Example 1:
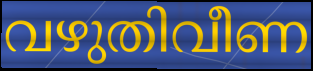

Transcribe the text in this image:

വഴുതിവീണ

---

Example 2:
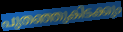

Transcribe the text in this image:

പുതഞ്ഞുകിടക്കും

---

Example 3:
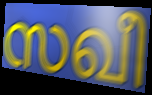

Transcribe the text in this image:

സഖീ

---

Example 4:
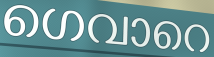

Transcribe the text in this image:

ഗെവാറെ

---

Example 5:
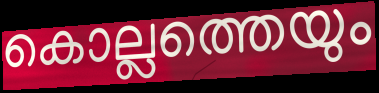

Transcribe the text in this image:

കൊല്ലത്തെയും